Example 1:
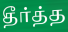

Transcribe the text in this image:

தீர்த்த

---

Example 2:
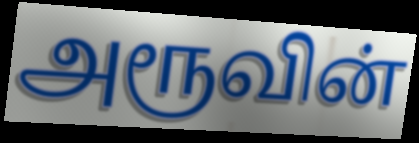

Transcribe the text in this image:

அரூவின்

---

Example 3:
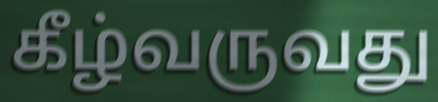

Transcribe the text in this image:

கீழ்வருவது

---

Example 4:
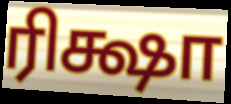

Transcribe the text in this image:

ரிக்ஷா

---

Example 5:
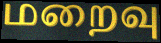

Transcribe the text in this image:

மறைவு